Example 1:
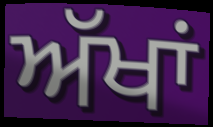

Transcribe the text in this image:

ਅੱਖਾਂ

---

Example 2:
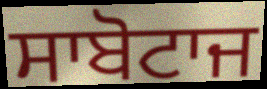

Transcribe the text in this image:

ਸਾਬੋਟਾਜ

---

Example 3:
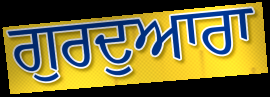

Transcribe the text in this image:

ਗੁਰਦੁਆਰਾ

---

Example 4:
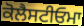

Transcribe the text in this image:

ਕੋਲੈਸਟੀਓਮਾ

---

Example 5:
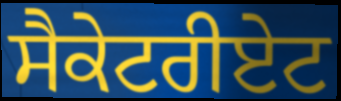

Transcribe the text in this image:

ਸੈਕੇਟਰੀਏਟ